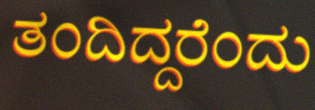
ತಂದಿದ್ದರೆಂದು